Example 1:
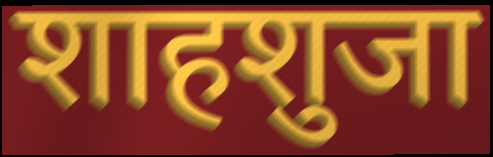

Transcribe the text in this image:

शाहशुजा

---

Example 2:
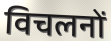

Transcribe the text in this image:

विचलनों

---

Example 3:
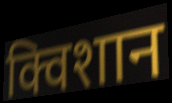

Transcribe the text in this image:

क्विशान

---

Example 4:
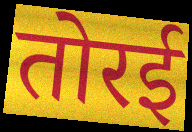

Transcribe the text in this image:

तोरई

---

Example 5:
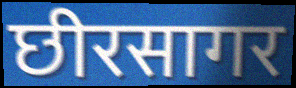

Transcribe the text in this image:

छीरसागर